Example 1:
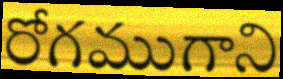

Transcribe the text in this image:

రోగముగాని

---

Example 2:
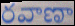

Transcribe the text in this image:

రవాణా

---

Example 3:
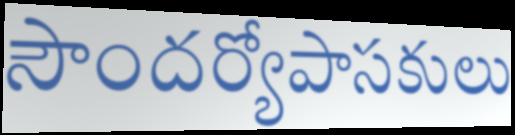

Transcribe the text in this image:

సౌందర్యోపాసకులు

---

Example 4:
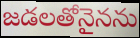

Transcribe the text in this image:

జడలతోనైనను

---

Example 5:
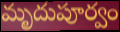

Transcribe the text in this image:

మృదుపూర్వం